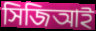
সিজিআই